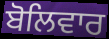
ਬੋਲਿਵਾਰ